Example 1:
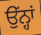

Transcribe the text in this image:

ਉੱਨ੍ਹਾਂ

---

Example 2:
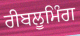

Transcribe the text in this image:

ਰੀਬਲੂਮਿੰਗ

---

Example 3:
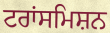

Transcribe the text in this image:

ਟਰਾਂਸਮਿਸ਼ਨ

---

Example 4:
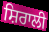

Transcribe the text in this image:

ਸ਼ਿਰਾਲੀ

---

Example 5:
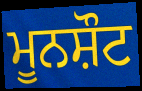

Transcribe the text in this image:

ਮੂਨਸ਼ੌਟ